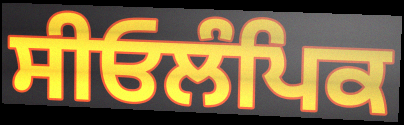
ਸੀਓਲੰਪਿਕ